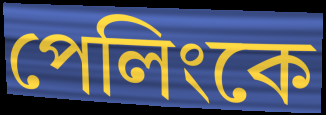
পেলিংকে